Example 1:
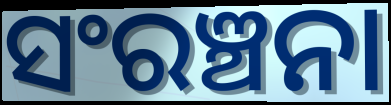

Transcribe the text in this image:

ସଂରଞ୍ଚନା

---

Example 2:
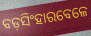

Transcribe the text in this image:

ବଡ଼ସିଂହାରବେଳେ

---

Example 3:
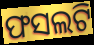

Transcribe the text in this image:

ଫସଲଟି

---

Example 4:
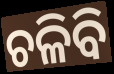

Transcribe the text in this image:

ଚଳିବି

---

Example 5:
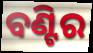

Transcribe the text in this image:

ବଣ୍ଟିର